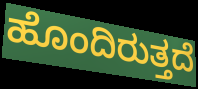
ಹೊಂದಿರುತ್ತದೆ